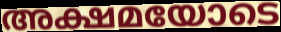
അക്ഷമയോടെ